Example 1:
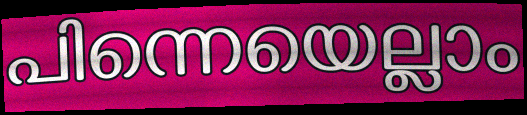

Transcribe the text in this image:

പിന്നെയെല്ലാം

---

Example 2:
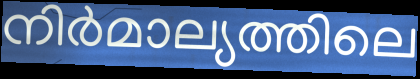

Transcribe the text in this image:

നിർമാല്യത്തിലെ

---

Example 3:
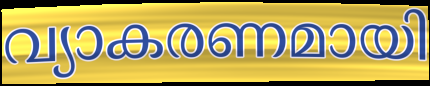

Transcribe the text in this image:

വ്യാകരണമായി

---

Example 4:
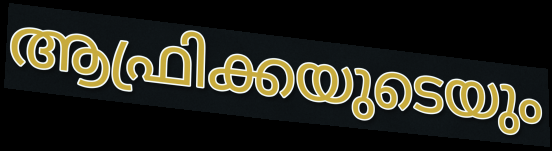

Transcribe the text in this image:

ആഫ്രിക്കയുടെയും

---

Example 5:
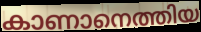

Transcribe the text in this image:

കാണാനെത്തിയ